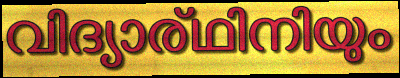
വിദ്യാര്ഥിനിയും